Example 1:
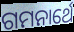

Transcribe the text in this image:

ଗମନାର୍ଥେ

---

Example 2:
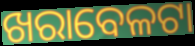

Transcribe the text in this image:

ଖରାବେଳଟା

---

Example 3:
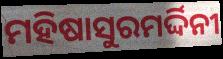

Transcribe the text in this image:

ମହିଷାସୁରମର୍ଦ୍ଦିନୀ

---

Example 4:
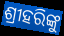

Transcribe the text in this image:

ଶ୍ରୀହରିଙ୍କୁ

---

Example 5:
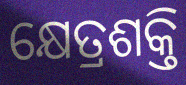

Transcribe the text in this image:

କ୍ଷେତ୍ରଶକ୍ତି